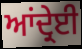
ਆਂਦ੍ਰੇਈ